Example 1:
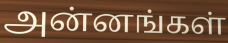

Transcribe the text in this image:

அன்னங்கள்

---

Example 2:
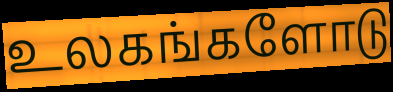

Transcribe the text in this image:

உலகங்களோடு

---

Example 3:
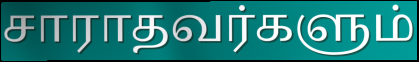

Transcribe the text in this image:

சாராதவர்களும்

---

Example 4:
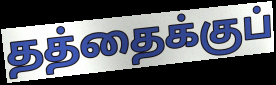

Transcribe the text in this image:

தத்தைக்குப்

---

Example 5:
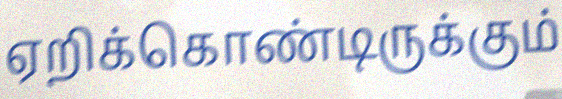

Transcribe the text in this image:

ஏறிக்கொண்டிருக்கும்